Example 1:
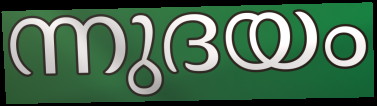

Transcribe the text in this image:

ന്നുദയം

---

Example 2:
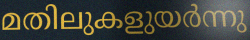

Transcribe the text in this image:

മതിലുകളുയർന്നു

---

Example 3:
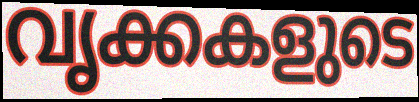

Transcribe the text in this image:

വൃക്കകളുടെ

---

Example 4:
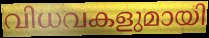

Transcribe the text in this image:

വിധവകളുമായി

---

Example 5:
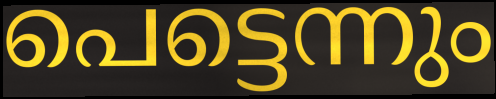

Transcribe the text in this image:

പെട്ടെന്നും